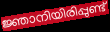
ജ്ഞാനിയിരിപ്പുണ്ട്